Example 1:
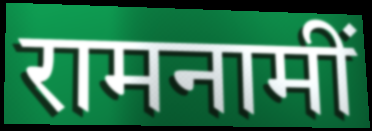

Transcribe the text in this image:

रामनामीं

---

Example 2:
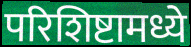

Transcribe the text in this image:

परिशिष्टामध्ये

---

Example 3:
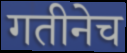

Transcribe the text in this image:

गतीनेच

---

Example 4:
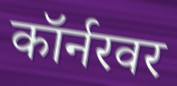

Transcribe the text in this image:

कॉर्नरवर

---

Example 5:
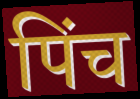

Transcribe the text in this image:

पिंच